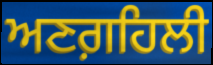
ਅਣਗ਼ਹਿਲੀ